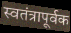
स्वतंत्रापूर्वक